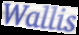
Wallis